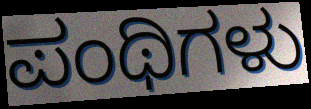
ಪಂಥಿಗಳು